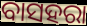
ବାସହରା